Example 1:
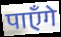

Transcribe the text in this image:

पाएँगे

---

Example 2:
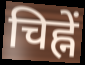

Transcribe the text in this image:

चिह्नें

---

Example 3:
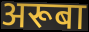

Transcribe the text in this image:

अरूबा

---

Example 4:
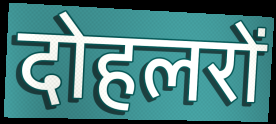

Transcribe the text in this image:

दोहलरों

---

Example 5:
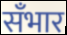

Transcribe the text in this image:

सँभार